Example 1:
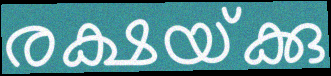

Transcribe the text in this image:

രക്ഷയ്‌ക്കു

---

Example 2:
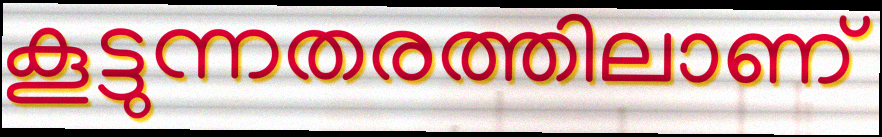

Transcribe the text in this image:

കൂട്ടുന്നതരത്തിലാണ്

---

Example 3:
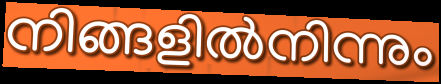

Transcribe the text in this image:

നിങ്ങളിൽനിന്നും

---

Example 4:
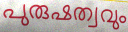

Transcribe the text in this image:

പുരുഷത്വവും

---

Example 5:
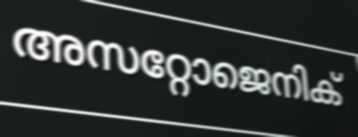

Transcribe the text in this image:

അസറ്റോജെനിക്